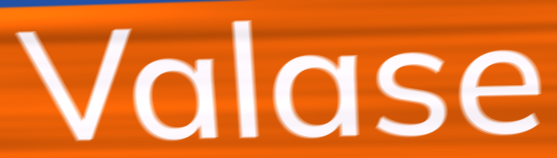
Valase